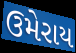
ઉમેરાય